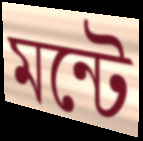
মন্টে